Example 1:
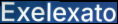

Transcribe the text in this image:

Exelexato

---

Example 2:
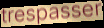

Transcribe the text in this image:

trespasser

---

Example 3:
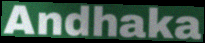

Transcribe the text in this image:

Andhaka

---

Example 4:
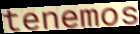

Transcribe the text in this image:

tenemos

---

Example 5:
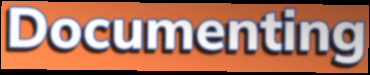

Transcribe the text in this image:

Documenting